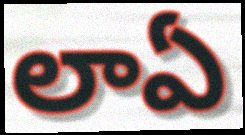
లాఏ